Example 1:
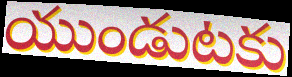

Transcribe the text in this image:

యుండుటకు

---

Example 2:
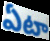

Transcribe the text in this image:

ఏటా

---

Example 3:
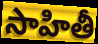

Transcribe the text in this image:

సాహితీ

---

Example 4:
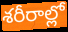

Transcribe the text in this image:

శరీరాల్లో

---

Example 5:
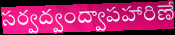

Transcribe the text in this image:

సర్వద్వంద్వాపహారిణే